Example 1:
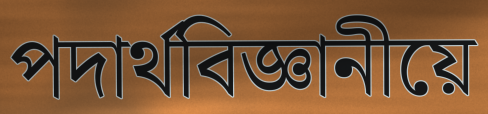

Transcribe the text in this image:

পদাৰ্থবিজ্ঞানীয়ে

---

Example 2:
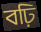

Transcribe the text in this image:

বঢ়ি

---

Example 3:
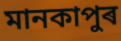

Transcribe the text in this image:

মানকাপুৰ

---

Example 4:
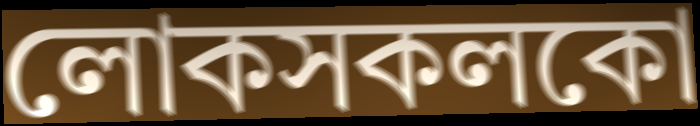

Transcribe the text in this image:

লোকসকলকো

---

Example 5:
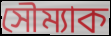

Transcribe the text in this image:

সৌম্যাক